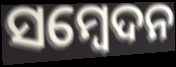
ସମ୍ଵେଦନ